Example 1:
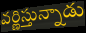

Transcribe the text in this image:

వర్ణిస్తున్నాడు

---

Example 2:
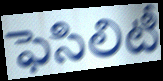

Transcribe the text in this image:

ఫెసిలిటీ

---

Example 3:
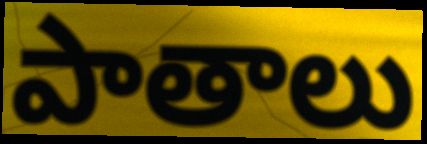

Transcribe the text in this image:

పాతాలు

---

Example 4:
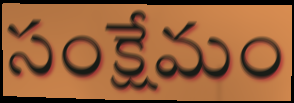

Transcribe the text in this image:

సంక్షేమం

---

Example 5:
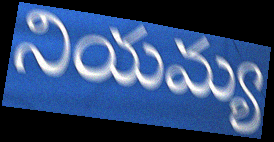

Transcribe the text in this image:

నియమ్య